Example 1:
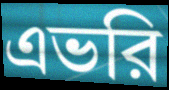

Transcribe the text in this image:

এভরি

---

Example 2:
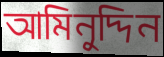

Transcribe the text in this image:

আমিনুদ্দিন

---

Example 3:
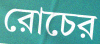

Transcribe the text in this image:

রোচের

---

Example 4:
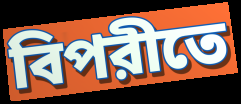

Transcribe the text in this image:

বিপরীতে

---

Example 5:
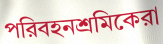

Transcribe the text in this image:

পরিবহনশ্রমিকেরা